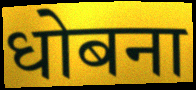
धोबना